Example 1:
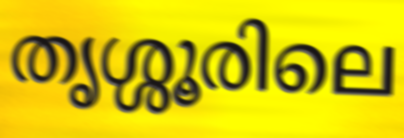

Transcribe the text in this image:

തൃശ്ശൂരിലെ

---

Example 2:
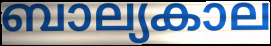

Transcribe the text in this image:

ബാല്യകാല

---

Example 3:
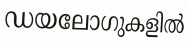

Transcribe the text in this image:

ഡയലോഗുകളിൽ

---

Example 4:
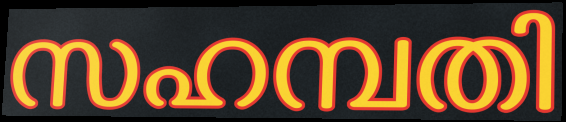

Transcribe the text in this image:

സഹമ്പതി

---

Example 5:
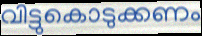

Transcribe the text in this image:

വിട്ടുകൊടുക്കണം